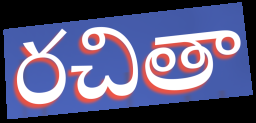
రచితా